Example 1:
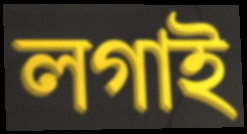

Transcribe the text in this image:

লগাই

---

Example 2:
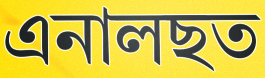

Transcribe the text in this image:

এনালছত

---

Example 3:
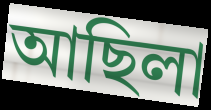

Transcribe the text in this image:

আছিলা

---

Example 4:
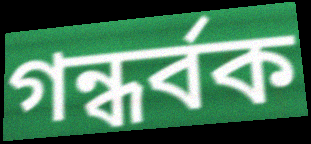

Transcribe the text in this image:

গন্ধৰ্বক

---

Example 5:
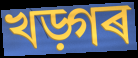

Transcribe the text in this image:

খড়্গৰ